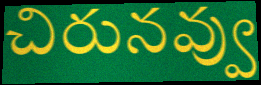
చిరునవ్వు